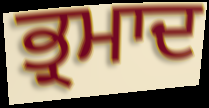
ਭ੍ਰਮਾਦ